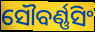
ସୌବର୍ଣ୍ଣସିଂ